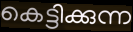
കെട്ടിക്കുന്ന